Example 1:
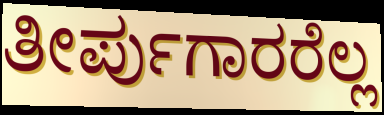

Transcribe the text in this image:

ತೀರ್ಪುಗಾರರೆಲ್ಲ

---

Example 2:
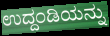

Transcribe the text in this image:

ಉದ್ದಂಡಿಯನ್ನು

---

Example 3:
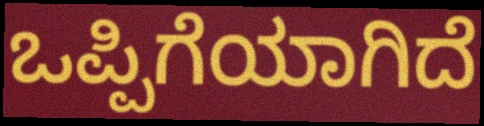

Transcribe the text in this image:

ಒಪ್ಪಿಗೆಯಾಗಿದೆ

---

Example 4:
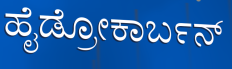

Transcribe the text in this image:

ಹೈಡ್ರೋಕಾರ್ಬನ್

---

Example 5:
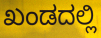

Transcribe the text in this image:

ಖಂಡದಲ್ಲಿ